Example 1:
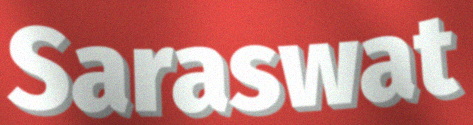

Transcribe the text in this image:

Saraswat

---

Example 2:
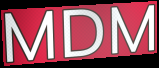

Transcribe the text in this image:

MDM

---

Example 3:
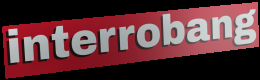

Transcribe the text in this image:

interrobang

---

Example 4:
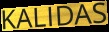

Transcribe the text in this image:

KALIDAS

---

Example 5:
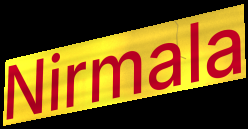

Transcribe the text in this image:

Nirmala